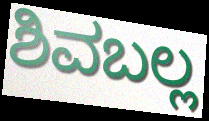
ಶಿವಬಲ್ಲ